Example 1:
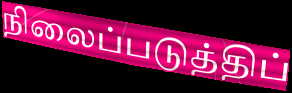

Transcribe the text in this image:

நிலைப்படுத்திப்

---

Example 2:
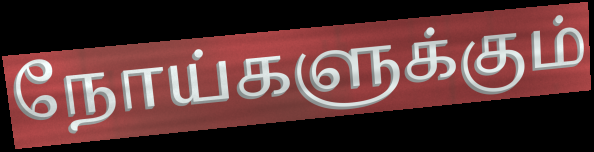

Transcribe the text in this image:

நோய்களுக்கும்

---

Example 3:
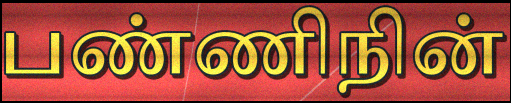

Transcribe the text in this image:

பண்ணிநின்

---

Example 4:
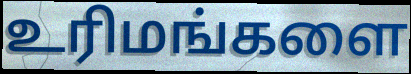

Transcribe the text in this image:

உரிமங்களை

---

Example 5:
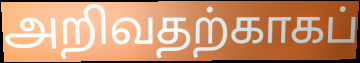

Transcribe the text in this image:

அறிவதற்காகப்